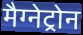
मैग्नेट्रोन